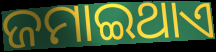
ଜମାଇଥାଏ